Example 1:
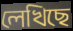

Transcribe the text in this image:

লেখিছে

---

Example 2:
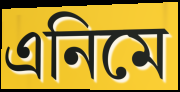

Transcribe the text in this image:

এনিমে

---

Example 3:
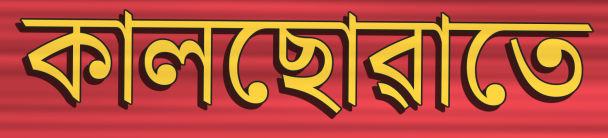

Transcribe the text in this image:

কালছোৱাতে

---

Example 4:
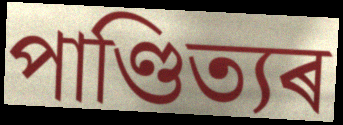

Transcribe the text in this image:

পাণ্ডিত্যৰ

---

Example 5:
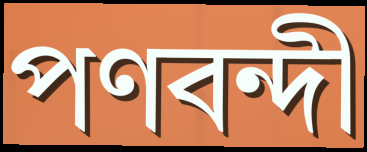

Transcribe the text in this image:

পণবন্দী